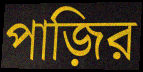
পাজ়ির